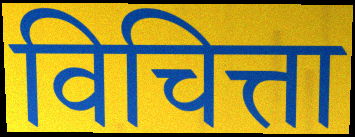
विचित्ता